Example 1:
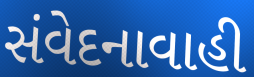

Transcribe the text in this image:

સંવેદનાવાહી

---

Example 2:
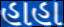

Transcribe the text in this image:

હાહા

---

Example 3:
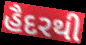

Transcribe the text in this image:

હૈદરથી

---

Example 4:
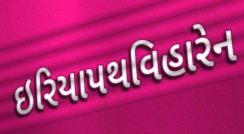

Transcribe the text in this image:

ઇરિયાપથવિહારેન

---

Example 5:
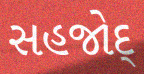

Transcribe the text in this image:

સહજોદ્